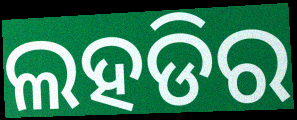
ଲହଡିର